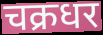
चक्रधर